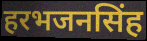
हरभजनसिंह